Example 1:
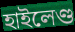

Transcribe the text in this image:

হাইলেণ্ড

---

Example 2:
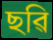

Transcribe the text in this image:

ছৱি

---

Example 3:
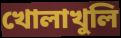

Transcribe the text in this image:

খোলাখুলি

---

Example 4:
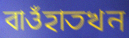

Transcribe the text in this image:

বাওঁহাতখন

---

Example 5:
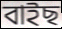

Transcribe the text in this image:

বাইছ